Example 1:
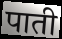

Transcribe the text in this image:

पाती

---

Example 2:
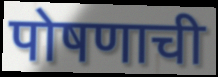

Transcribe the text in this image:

पोषणाची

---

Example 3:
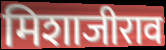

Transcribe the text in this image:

मिशाजीराव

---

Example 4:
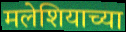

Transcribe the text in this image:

मलेशियाच्या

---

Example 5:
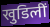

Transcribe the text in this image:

खुडिलीं